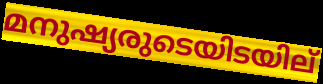
മനുഷ്യരുടെയിടയില്